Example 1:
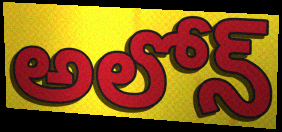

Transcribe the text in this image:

అలోన్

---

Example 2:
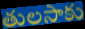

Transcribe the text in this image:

తులసాకు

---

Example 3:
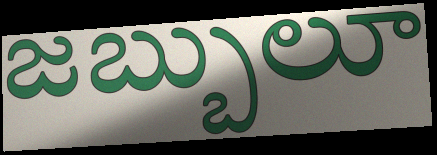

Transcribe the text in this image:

జబ్బులూ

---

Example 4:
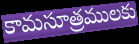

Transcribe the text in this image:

కామసూత్రములకు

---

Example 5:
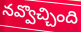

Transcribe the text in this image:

నవ్వొచ్చింది